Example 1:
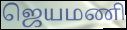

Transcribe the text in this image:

ஜெயமணி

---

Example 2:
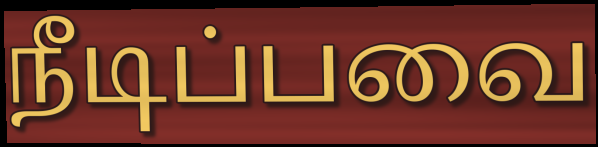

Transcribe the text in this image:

நீடிப்பவை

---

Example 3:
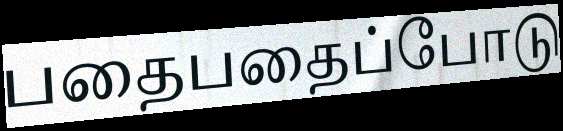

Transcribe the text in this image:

பதைபதைப்போடு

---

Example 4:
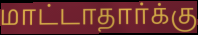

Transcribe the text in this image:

மாட்டாதார்க்கு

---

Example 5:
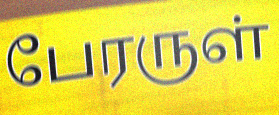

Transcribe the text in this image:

பேரருள்